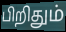
பிறிதும்